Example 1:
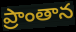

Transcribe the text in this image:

ప్రాంతాన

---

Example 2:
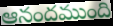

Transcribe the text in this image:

ఆనందముంది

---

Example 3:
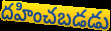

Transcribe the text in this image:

దహించబడడు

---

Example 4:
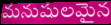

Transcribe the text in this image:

మనుషులమైన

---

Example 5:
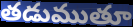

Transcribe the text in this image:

తడుముతూ